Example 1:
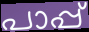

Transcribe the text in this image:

പാപ്പ്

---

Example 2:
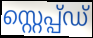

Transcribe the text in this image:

സ്റ്റെപ്പ്ഡ്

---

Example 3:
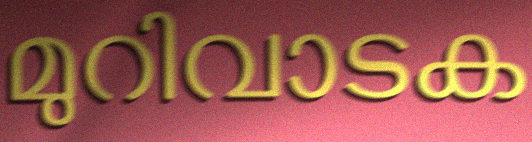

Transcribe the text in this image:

മുറിവാടക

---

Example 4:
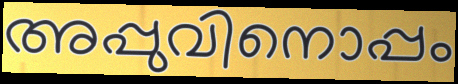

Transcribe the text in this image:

അപ്പുവിനൊപ്പം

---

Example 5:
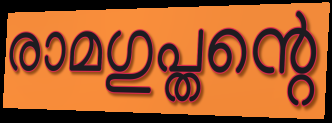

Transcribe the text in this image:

രാമഗുപ്തന്റെ